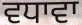
ਵਧਾਵਾ